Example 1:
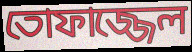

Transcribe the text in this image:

তোফাজ্জেল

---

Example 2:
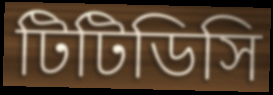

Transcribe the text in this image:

টিটিডিসি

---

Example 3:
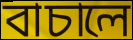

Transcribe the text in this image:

বাচালে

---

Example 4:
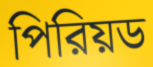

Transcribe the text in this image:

পিরিয়ড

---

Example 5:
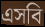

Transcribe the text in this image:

এসবি